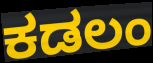
ಕಡಲಂ